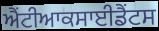
ਐਂਟੀਆਕਸਾਈਡੈਂਟਸ